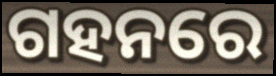
ଗହନରେ